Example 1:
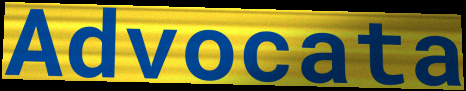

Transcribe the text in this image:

Advocata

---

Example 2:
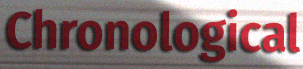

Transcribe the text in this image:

Chronological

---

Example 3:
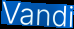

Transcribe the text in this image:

Vandi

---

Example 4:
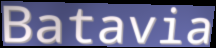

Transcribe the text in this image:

Batavia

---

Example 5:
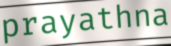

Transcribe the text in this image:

prayathna